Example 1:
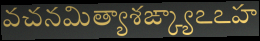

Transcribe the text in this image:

వచనమిత్యాశఙ్క్యాఽఽహ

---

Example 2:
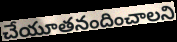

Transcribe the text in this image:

చేయూతనందించాలని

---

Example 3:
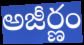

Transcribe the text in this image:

అజీర్ణం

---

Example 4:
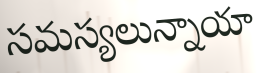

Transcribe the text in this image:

సమస్యలున్నాయా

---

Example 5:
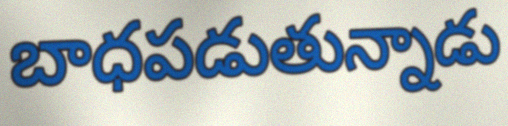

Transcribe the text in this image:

బాధపడుతున్నాడు